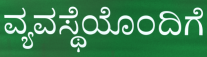
ವ್ಯವಸ್ಥೆಯೊಂದಿಗೆ